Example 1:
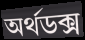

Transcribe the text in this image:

অৰ্থডক্স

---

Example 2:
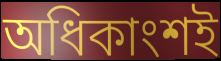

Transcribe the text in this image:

অধিকাংশই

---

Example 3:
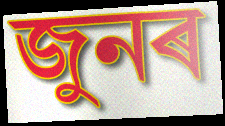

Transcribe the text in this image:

জুনৰ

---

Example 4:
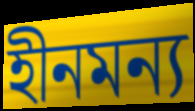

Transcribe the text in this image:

হীনমন্য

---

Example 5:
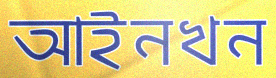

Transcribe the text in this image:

আইনখন